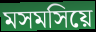
মসমসিয়ে